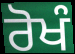
ਰੋਖੰ